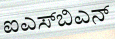
ಐಎಸ್‌ಬಿಎನ್